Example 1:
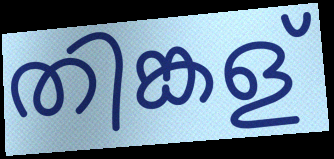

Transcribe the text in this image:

തിങ്കള്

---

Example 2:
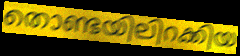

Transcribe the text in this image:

തൊണ്ടയിലിറക്കിയ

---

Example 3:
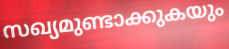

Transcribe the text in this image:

സഖ്യമുണ്ടാക്കുകയും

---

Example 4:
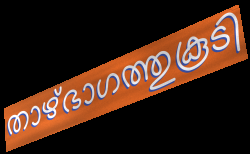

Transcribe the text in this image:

താഴ്ഭാഗത്തുകൂടി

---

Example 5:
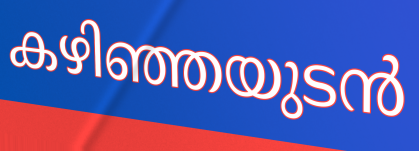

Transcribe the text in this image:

കഴിഞ്ഞയുടൻ